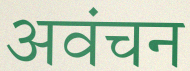
अवंचन